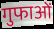
गुफाओं